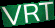
VRT